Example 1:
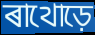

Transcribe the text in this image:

ৰাথোড়ে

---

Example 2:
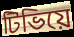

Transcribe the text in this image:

টিভিয়ে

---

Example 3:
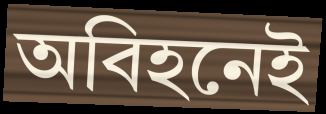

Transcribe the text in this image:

অবিহনেই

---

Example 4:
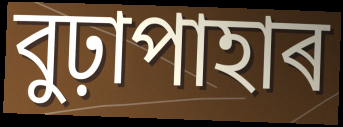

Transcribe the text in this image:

বুঢ়াপাহাৰ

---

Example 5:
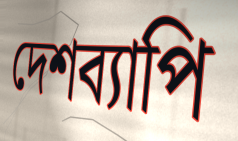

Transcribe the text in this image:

দেশব্যাপি